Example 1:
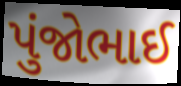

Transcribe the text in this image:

પુંજોભાઈ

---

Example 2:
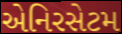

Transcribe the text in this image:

એનિરસેટમ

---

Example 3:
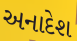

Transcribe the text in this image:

અનાદેશ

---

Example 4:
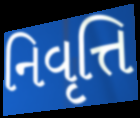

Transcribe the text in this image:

નિવૃત્તિ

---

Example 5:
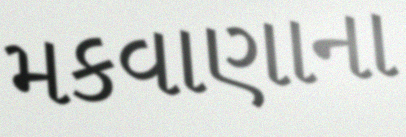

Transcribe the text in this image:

મકવાણાના